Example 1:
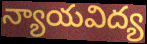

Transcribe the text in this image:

న్యాయవిద్య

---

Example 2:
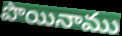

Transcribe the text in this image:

పొయినాము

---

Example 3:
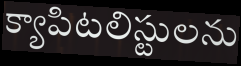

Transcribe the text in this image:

క్యాపిటలిస్టులను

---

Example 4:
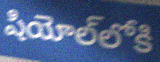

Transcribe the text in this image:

షియోల్‌లోకి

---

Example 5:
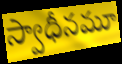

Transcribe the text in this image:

స్వాధీనమూ